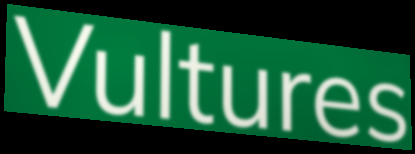
Vultures